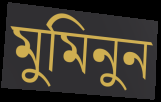
মুমিনুন